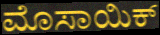
ಮೊಸಾಯಿಕ್